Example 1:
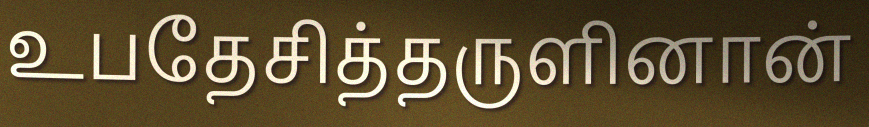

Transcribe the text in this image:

உபதேசித்தருளினான்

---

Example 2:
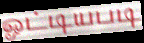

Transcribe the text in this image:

ஓட்டியபடி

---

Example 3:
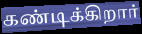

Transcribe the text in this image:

கண்டிக்கிறார்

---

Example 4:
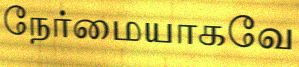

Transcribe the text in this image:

நேர்மையாகவே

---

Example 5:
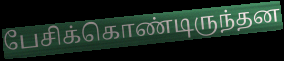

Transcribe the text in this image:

பேசிக்கொண்டிருந்தன